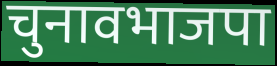
चुनावभाजपा